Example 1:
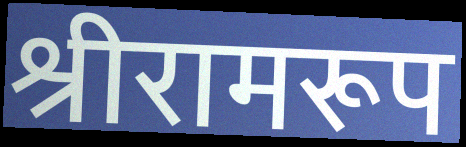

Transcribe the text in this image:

श्रीरामरूप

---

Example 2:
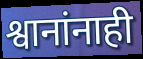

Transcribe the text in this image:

श्वानांनाही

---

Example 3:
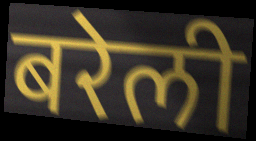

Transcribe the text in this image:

बरेली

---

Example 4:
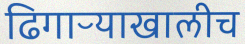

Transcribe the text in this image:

ढिगाऱ्याखालीच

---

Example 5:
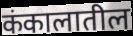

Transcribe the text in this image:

कंकालातील